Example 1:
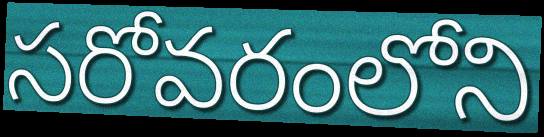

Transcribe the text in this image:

సరోవరంలోని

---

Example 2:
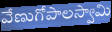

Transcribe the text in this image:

వేణుగోపాలస్వామి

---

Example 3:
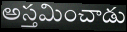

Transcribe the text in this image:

అస్తమించాడు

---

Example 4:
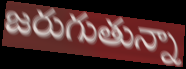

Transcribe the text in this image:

జరుగుతున్నా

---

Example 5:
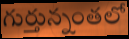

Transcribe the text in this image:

గుర్తున్నంతలో